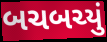
બચબચ્યું